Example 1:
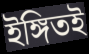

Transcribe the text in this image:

ইঙ্গিতই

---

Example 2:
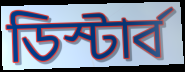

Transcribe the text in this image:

ডিস্টার্ব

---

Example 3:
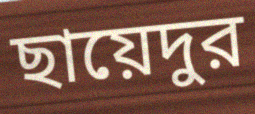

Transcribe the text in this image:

ছায়েদুর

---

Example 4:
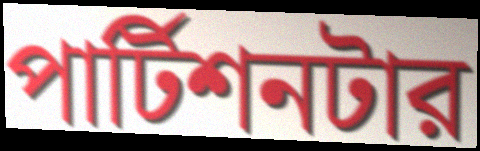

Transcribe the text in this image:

পার্টিশনটার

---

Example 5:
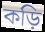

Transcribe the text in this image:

কড়ি